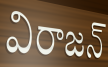
విరాజన్